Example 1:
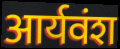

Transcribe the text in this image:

आर्यवंश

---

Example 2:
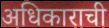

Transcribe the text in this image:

अधिकाराची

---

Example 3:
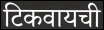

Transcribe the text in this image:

टिकवायची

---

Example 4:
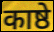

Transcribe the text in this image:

काष्ठे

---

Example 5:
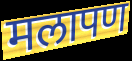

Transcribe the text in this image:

मलापण